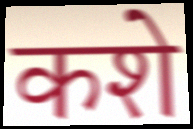
कशे